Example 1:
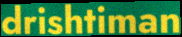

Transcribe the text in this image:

drishtiman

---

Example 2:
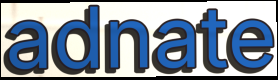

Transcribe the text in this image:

adnate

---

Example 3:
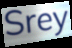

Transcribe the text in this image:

Srey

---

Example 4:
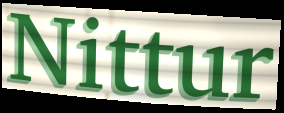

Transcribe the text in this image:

Nittur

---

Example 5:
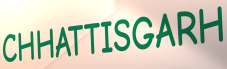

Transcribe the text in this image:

CHHATTISGARH